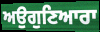
ਅਉਗੁਣਿਆਰਾ